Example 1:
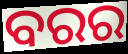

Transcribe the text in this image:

ବରର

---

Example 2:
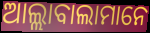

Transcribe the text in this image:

ଆଲ୍ଲାବାଲାମାନେ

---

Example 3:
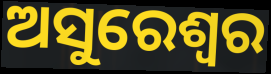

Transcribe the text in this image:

ଅସୁରେଶ୍ୱର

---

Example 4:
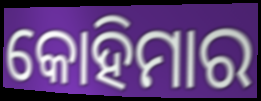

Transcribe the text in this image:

କୋହିମାର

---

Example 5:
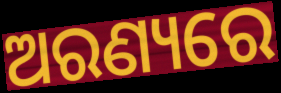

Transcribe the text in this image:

ଅରଣ୍ୟରେ